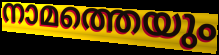
നാമത്തെയും